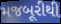
મજબૂરીથી